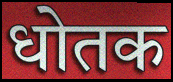
धोतक